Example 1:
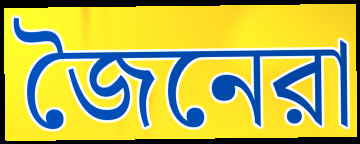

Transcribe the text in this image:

জৈনেরা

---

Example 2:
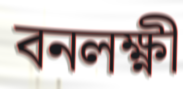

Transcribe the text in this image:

বনলক্ষ্ণী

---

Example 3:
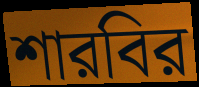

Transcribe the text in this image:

শারবির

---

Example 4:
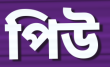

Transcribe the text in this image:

পিউ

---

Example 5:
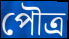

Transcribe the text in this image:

পৌত্র